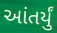
આંતર્યું